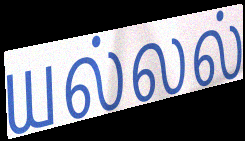
யல்லல்